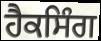
ਹੈਕਸਿੰਗ